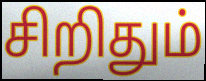
சிறிதும்